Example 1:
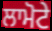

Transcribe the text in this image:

ਲਾਮੋਟੇ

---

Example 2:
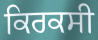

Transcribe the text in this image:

ਕਿਰਕਸੀ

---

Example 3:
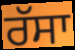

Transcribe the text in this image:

ਰੱਸਾ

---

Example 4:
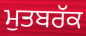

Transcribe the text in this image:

ਮੁਤਬਰੱਕ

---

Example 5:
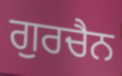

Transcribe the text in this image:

ਗੁਰਚੈਨ